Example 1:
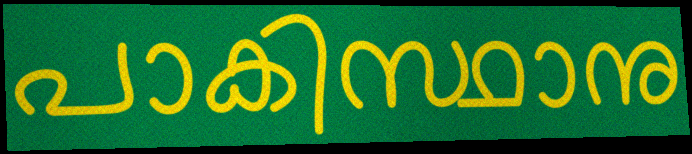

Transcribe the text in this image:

പാകിസ്ഥാനു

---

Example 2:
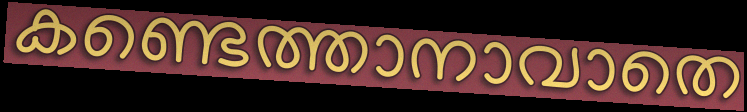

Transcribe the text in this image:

കണ്ടെത്താനാവാതെ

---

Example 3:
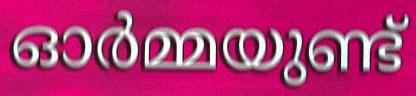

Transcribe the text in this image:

ഓർമ്മയുണ്ട്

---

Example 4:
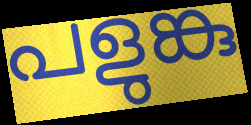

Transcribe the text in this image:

പളുങ്കു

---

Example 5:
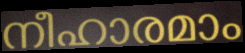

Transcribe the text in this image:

നീഹാരമാം